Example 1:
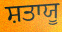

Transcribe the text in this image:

ਸ਼ਤਾਯੂ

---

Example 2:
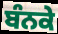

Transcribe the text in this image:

ਬੰਨਕੇ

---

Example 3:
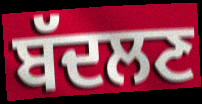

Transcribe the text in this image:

ਬੱਦਲਣ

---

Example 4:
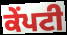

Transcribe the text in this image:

ਕੇਂਪਟੀ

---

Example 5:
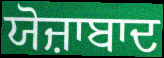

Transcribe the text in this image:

ਯੋਜ਼ਾਬਾਦ